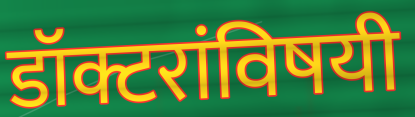
डॉक्टरांविषयी